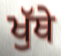
ਖੁੱਥੇ